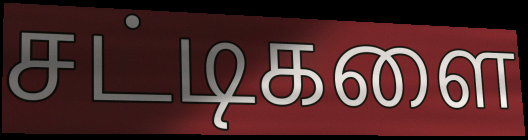
சட்டிகளை